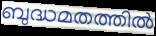
ബുദ്ധമതത്തിൽ